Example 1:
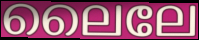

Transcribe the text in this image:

ലൈലേ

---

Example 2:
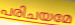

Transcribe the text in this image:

പരിചയമേ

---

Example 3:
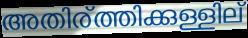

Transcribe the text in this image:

അതിര്ത്തിക്കുള്ളില്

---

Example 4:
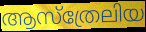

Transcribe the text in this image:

ആസ്ത്രേലിയ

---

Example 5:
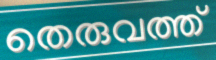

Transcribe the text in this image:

തെരുവത്ത്